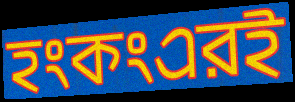
হংকংএরই